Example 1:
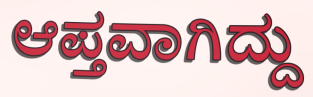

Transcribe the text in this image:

ಆಪ್ತವಾಗಿದ್ದು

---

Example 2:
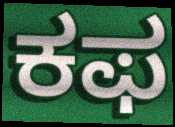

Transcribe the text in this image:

ಕಫ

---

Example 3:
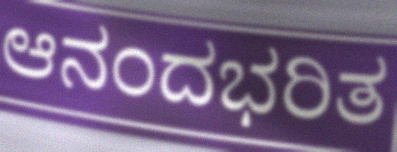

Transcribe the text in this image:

ಆನಂದಭರಿತ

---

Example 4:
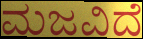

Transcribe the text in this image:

ಮಜವಿದೆ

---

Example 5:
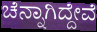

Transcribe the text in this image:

ಚೆನ್ನಾಗಿದ್ದೇವೆ